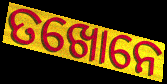
ତଖୋନେ